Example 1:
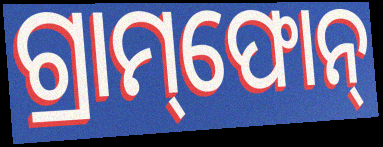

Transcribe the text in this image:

ଗ୍ରାମ୍‌ଫୋନ୍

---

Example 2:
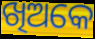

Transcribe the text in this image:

ଖିଅକେ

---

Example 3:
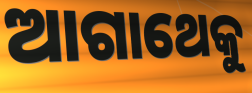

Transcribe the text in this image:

ଆଗାଥେକୁ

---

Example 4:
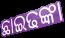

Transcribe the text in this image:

ଛାଇଢଙ୍କା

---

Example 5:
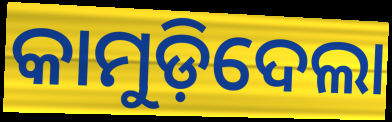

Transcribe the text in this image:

କାମୁଡ଼ିଦେଲା